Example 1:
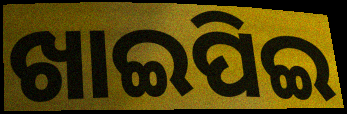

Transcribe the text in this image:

ଖାଇପିଇ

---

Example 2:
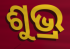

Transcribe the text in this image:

ଶୁଭ୍ର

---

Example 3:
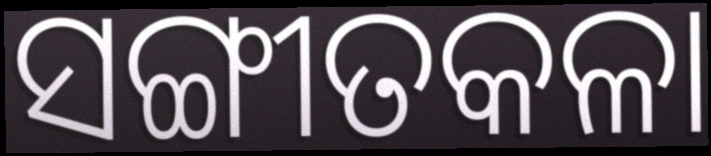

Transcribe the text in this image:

ସଙ୍ଗୀତକଳା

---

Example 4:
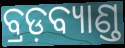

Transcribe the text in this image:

ବ୍ରଡ଼ବ୍ୟାଣ୍ଡ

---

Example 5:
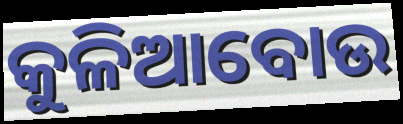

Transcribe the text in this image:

କୁଳିଆବୋଉ